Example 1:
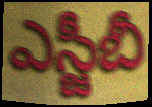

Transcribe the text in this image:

ఎస్జీబీ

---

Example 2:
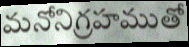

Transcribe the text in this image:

మనోనిగ్రహముతో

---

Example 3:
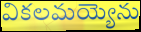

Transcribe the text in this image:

వికలమయ్యెను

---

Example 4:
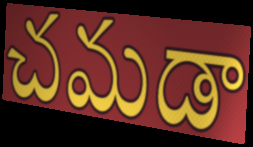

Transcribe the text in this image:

చమడా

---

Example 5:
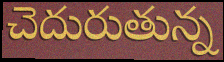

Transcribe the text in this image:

చెదురుతున్న